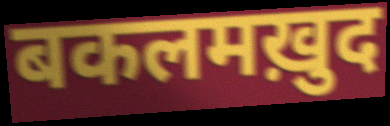
बकलमख़ुद